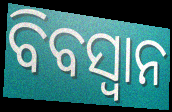
ବିବସ୍ୱାନ